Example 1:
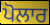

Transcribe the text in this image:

ਪੋਲਾਰ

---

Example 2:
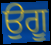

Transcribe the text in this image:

ਉਗੂ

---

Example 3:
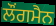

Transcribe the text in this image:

ਲੌਂਗਮੈਨ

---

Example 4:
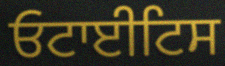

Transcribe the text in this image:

ਓਟਾਈਟਿਸ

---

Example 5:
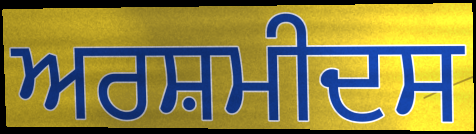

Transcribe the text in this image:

ਅਰਸ਼ਮੀਦਸ